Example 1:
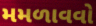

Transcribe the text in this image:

મમળાવવો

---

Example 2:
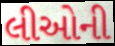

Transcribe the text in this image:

લીઓની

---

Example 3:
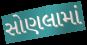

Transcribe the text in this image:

સોણલામાં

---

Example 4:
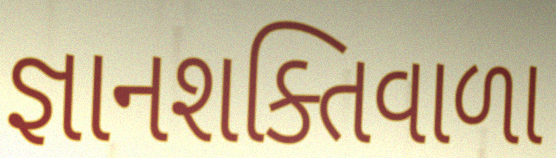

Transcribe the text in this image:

જ્ઞાનશક્તિવાળા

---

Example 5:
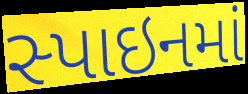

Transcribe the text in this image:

સ્પાઇનમાં